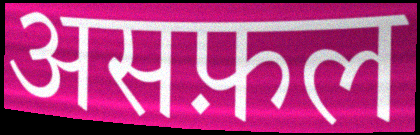
असफ़ल